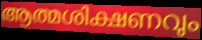
ആത്മശിക്ഷണവും